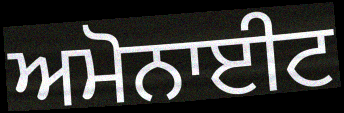
ਅਮੋਨਾਈਟ